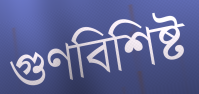
গুণবিশিষ্ট